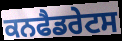
ਕਨਫੈਡਰੇਟਸ